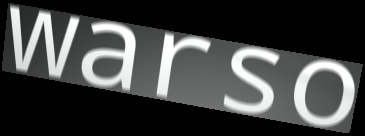
warso